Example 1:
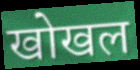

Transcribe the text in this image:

खोखल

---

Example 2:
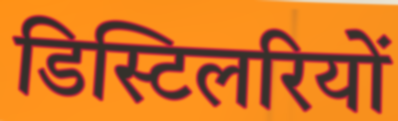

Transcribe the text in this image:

डिस्टिलरियों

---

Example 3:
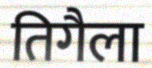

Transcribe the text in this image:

तिगैला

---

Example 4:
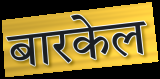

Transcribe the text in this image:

बारकेल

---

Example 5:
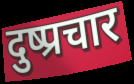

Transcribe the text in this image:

दुष्प्रचार